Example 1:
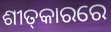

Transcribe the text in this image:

ଶୀତ୍‌କାରରେ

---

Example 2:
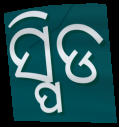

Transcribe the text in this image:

ସ୍ପିଡ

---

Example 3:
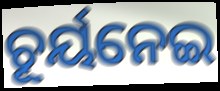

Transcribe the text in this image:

ଚୂର୍ୟନେଇ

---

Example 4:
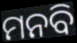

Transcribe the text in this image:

ମନବି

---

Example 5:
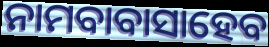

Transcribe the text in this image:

ନାମବାବାସାହେବ